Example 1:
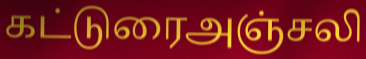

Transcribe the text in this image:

கட்டுரைஅஞ்சலி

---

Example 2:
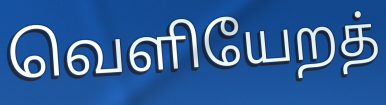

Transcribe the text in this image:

வெளியேறத்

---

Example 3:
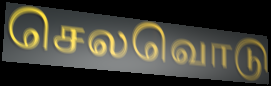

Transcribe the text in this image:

செலவொடு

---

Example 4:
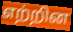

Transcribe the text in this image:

எற்றின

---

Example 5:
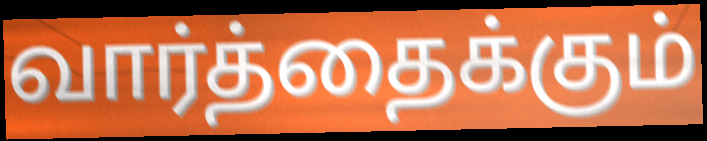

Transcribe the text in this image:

வார்த்தைக்கும்